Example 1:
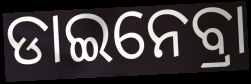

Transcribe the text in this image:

ଡାଇନେବ୍ରା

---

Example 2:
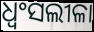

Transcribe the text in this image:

ଧ୍ବଂସଲୀଳା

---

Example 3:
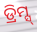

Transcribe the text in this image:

ଡ୍ରିମ୍ସ୍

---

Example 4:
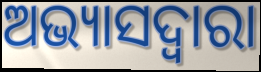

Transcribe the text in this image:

ଅଭ୍ୟାସଦ୍ୱାରା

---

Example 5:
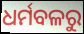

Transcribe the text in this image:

ଧର୍ମବଳରୁ